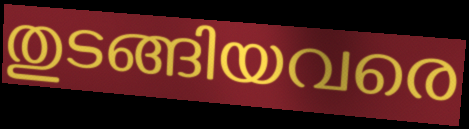
തുടങ്ങിയവരെ